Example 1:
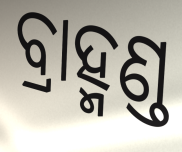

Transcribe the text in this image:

ବ୍ରାହ୍ମଣ୍ଡ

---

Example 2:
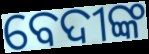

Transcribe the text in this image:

ବେଦୀଙ୍କ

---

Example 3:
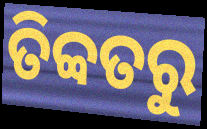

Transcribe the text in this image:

ତିବ୍ବତରୁ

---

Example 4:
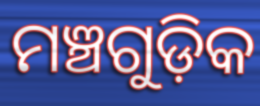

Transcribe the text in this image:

ମଞ୍ଚଗୁଡ଼ିକ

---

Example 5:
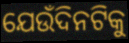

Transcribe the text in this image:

ଯେଉଁଦିନଟିକୁ